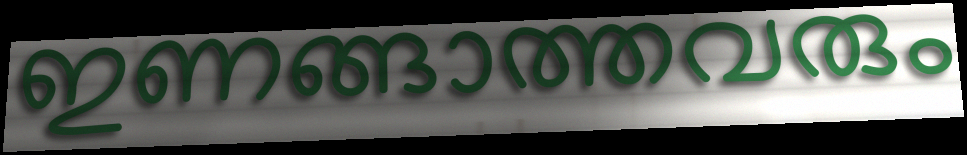
ഇണങ്ങാത്തവരും